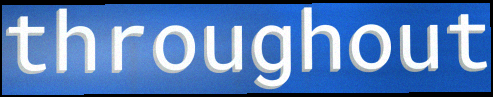
throughout